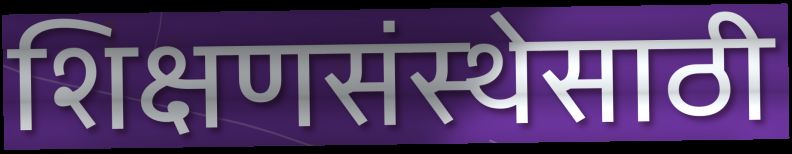
शिक्षणसंस्थेसाठी